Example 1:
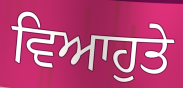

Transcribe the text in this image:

ਵਿਆਹੁਤੇ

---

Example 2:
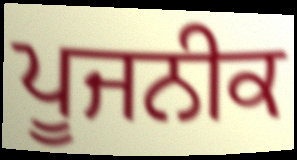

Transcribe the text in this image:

ਪੂਜਨੀਕ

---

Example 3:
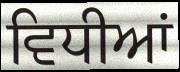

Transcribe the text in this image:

ਵਿਧੀਆਂ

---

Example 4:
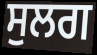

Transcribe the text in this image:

ਸੁਲਗ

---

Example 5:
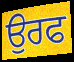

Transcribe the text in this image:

ਉਰਫ